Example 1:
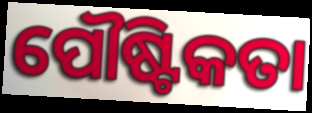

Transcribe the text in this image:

ପୌଷ୍ଟିକତା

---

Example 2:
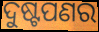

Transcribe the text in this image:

ଦୁଷ୍ଟପଣର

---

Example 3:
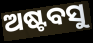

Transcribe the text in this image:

ଅଷ୍ଟବସୁ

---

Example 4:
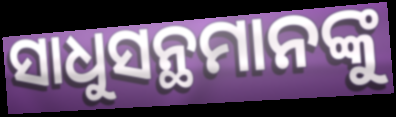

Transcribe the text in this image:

ସାଧୁସନ୍ଥମାନଙ୍କୁ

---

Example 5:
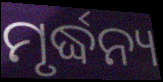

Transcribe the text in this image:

ମୃର୍ଦ୍ଧନ୍ୟ